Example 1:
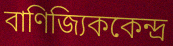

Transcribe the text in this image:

বাণিজ্যিককেন্দ্র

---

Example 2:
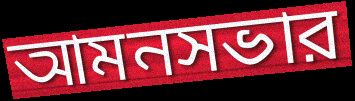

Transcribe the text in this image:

আমনসভার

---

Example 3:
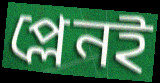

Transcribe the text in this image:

প্লেনই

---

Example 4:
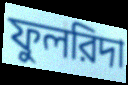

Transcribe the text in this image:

ফুলরিদা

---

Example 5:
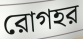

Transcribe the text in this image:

রোগহর